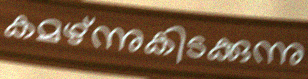
കമഴ്ന്നുകിടക്കുന്നു